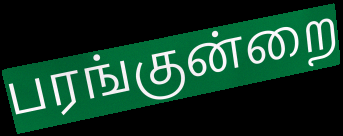
பரங்குன்றை